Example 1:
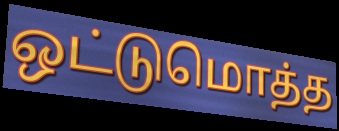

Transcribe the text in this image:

ஒட்டுமொத்த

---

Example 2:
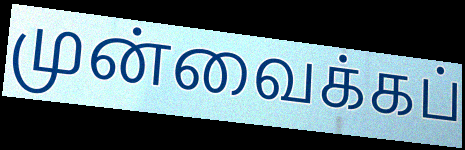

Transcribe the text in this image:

முன்வைக்கப்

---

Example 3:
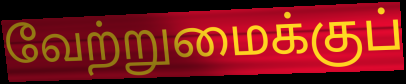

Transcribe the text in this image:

வேற்றுமைக்குப்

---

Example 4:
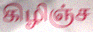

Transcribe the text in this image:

கிழிஞ்ச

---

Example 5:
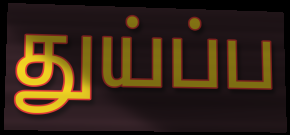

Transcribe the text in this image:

துய்ப்ப